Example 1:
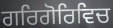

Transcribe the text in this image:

ਗਰਿਗੋਰਿਵਿਚ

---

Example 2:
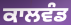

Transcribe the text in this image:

ਕਾਲਵੰਡ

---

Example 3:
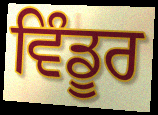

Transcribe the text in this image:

ਵਿੰਡੂਰ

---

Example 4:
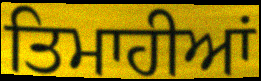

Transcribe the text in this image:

ਤਿਮਾਹੀਆਂ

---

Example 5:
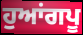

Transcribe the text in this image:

ਹੁਆਂਗਪੂ